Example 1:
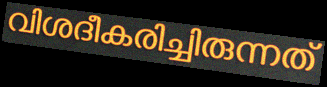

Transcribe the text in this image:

വിശദീകരിച്ചിരുന്നത്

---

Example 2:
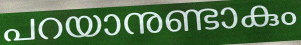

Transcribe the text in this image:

പറയാനുണ്ടാകും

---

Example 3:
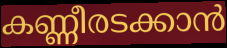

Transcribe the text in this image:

കണ്ണീരടക്കാൻ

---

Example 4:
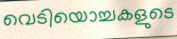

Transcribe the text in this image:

വെടിയൊച്ചകളുടെ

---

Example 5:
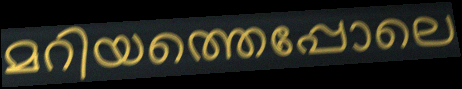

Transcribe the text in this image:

മറിയത്തെപ്പോലെ